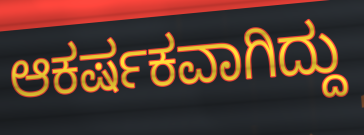
ಆಕರ್ಷಕವಾಗಿದ್ದು